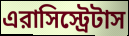
এরাসিস্ট্রেটাস